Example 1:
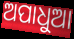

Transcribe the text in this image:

ଅପାଧୁଆ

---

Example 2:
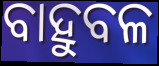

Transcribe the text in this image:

ବାହୁବଳ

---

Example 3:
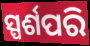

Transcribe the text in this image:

ସ୍ପର୍ଶପରି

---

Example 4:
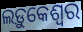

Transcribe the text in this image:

ଲଡ଼ୁକେଶ୍ୱର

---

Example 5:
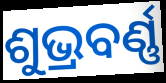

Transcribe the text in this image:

ଶୁଭ୍ରବର୍ଣ୍ଣ